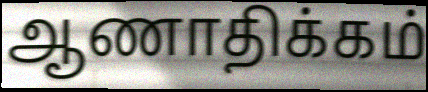
ஆணாதிக்கம்